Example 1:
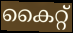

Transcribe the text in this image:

കൈറ്റ്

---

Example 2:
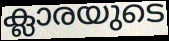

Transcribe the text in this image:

ക്ലാരയുടെ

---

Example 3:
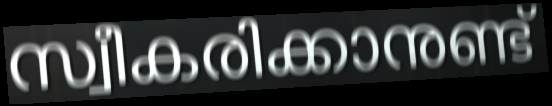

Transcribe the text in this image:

സ്വീകരിക്കാനുണ്ട്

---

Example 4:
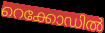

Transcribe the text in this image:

റെക്കോഡിൽ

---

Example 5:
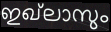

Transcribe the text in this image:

ഇഖ്‌ലാസും